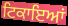
ਟਿਕਾਇਆਂ